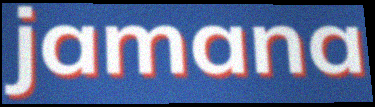
jamana